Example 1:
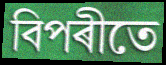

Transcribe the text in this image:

বিপৰীতে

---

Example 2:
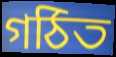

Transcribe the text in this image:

গঠিত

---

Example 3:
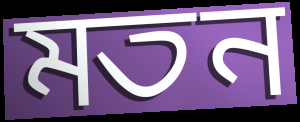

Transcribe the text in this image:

মতন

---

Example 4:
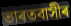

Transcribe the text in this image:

ভাৰতবাসীৰ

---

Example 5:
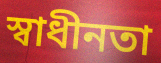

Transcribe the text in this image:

স্বাধীনতা